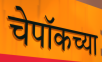
चेपॉकच्या